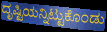
ದೃಷ್ಟಿಯನ್ನಿಟ್ಟುಕೊಂಡು